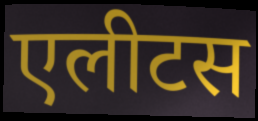
एलीटस